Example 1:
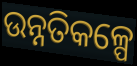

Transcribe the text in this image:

ଉନ୍ନତିକଳ୍ପେ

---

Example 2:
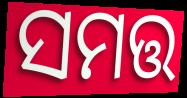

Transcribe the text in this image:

ସମତ୍ତ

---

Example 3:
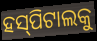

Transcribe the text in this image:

ହସ୍‌ପିଟାଲକୁ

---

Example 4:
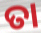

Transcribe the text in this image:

ତା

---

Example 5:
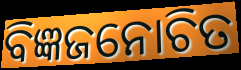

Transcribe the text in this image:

ବିଜ୍ଞଜନୋଚିତ